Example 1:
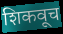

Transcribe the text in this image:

शिकवूच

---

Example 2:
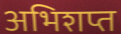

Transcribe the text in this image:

अभिशप्त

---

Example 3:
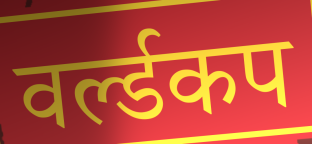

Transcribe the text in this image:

वर्ल्डकप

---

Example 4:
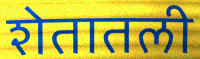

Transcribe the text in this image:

शेतातली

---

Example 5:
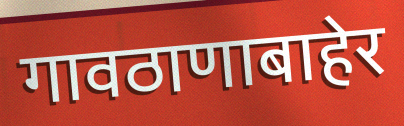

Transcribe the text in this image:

गावठाणाबाहेर